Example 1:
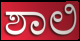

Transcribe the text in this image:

ಶಾಲಿ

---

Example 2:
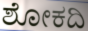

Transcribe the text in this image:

ಶೋಕದಿ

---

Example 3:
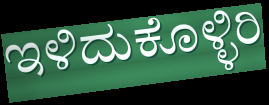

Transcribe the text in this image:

ಇಳಿದುಕೊಳ್ಳಿರಿ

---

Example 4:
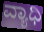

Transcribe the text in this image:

ವ್ಯಾಧಿ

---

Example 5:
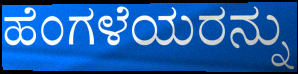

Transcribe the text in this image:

ಹೆಂಗಳೆಯರನ್ನು